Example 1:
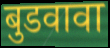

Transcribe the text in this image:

बुडवावा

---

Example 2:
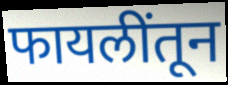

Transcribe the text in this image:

फायलींतून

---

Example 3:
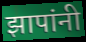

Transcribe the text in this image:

झापांनी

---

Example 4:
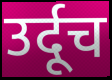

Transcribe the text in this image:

उर्दूच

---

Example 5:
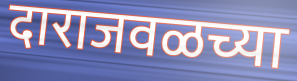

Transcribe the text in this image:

दाराजवळच्या